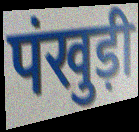
पंखुड़ी